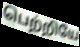
பெற்றியே